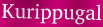
Kurippugal